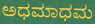
ಅಧಮಾಧಮ